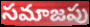
సమాజపు